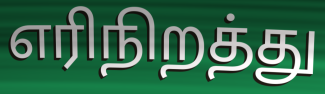
எரிநிறத்து